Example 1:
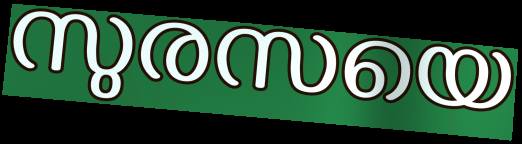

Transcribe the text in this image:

സുരസയെ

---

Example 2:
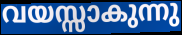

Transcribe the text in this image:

വയസ്സാകുന്നു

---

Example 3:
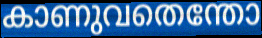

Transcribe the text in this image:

കാണുവതെന്തോ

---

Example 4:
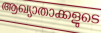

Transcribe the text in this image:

ആഖ്യാതാക്കളുടെ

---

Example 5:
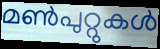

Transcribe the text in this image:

മൺപുറ്റുകൾ